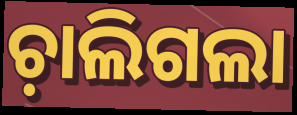
ଚ଼ାଲିଗଲା